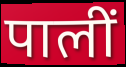
पालीं